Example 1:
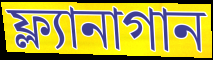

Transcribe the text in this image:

ফ্ল্যানাগান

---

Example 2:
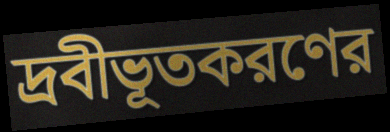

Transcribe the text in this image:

দ্রবীভূতকরণের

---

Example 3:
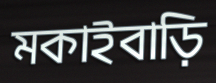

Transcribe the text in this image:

মকাইবাড়ি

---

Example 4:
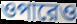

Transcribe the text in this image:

ওপারেও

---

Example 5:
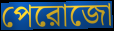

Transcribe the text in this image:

পেরোজো